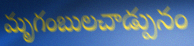
మృగంబులచాడ్పునం